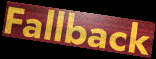
Fallback